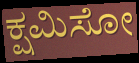
ಕ್ಷಮಿಸೋ